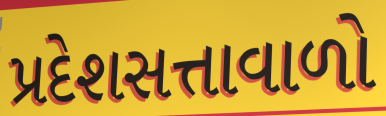
પ્રદેશસત્તાવાળો